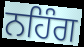
ਨਹਿੰਗ